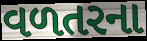
વળતરના